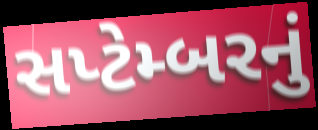
સપ્ટેમ્બરનું